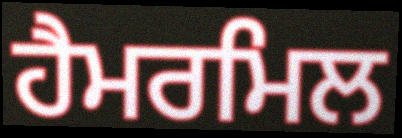
ਹੈਮਰਮਿਲ